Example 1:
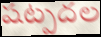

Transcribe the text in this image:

షట్పదల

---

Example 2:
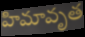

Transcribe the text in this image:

హిమావృత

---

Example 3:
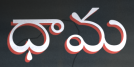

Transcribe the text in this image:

ధామ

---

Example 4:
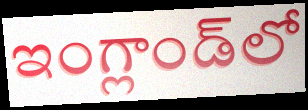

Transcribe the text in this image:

ఇంగ్లాండ్‌లో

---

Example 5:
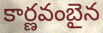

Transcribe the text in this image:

కార్ణవంబైన